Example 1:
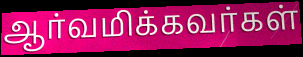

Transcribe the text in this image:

ஆர்வமிக்கவர்கள்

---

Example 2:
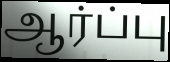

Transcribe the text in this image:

ஆர்ப்பு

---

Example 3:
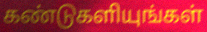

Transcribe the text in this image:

கண்டுகளியுங்கள்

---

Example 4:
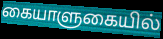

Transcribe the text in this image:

கையாளுகையில்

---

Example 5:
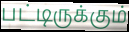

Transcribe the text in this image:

பட்டிருக்கும்